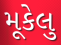
મૂકેલુ